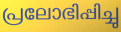
പ്രലോഭിപ്പിച്ചു